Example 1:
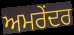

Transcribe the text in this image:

ਅਮਰੇਂਦਰ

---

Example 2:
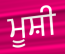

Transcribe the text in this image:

ਮੂਸ਼ੀ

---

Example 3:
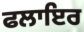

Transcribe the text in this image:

ਫਲਾਇਰ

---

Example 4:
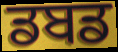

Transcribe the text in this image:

ਡਬਡ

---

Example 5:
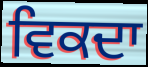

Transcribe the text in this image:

ਵਿਕਦਾ